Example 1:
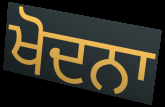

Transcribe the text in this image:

ਖੋਦਨਾ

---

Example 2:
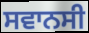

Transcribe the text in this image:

ਸਵਾਨਸੀ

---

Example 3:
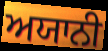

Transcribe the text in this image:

ਅਯਾਨੀ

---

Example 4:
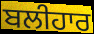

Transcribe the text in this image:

ਬਲੀਹਾਰ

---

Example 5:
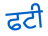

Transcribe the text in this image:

ਫਟੀ